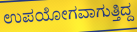
ಉಪಯೋಗವಾಗುತ್ತಿದ್ದ